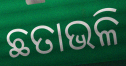
ଛତାଭଳି